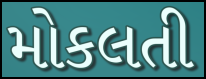
મોકલતી